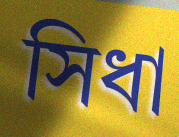
সিধা